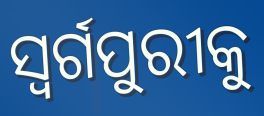
ସ୍ୱର୍ଗପୁରୀକୁ